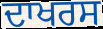
ਦਾਖਰਸ